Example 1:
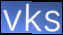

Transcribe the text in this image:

vks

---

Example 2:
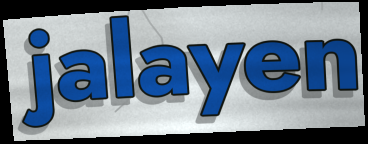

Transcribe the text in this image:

jalayen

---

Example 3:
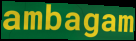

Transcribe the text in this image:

ambagam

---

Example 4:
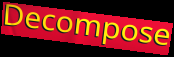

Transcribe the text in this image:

Decompose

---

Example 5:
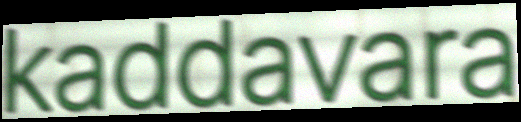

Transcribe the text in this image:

kaddavara